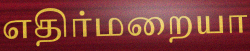
எதிர்மறையா